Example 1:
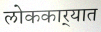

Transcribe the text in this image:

लोककार्यात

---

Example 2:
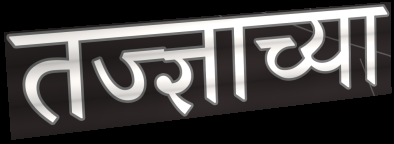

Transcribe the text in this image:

तज्ज्ञाच्या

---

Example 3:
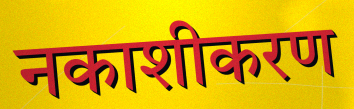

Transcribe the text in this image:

नकाशीकरण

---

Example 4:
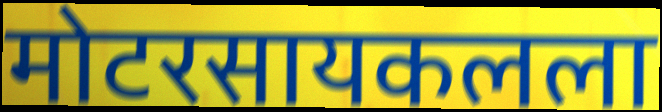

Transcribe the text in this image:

मोटरसायकलला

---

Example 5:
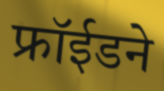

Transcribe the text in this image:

फ्रॉईडने